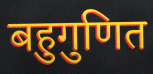
बहुगुणित